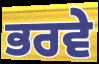
ਭਰਵੇ